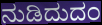
ನುಡಿದುದಂ